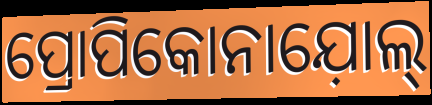
ପ୍ରୋପିକୋନାଯ଼ୋଲ୍